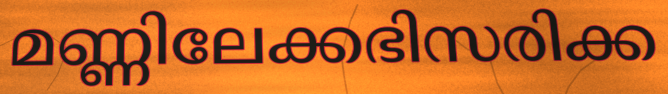
മണ്ണിലേക്കഭിസരിക്ക